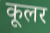
कूलर